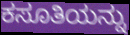
ಕಸೂತಿಯನ್ನು